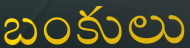
బంకులు